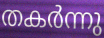
തകർന്നു